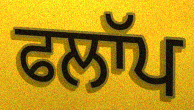
ਫਲਾੱਪ